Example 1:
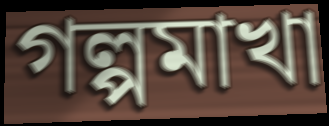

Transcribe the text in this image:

গল্পমাখা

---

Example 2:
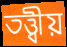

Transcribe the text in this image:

তত্ত্বীয়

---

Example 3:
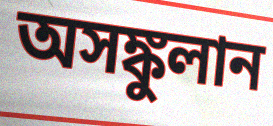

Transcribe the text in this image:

অসঙ্কুলান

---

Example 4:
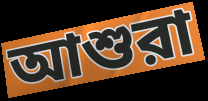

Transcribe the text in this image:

আশুরা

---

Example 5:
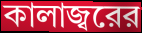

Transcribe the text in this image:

কালাজ্বরের